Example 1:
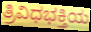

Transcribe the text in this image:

ತ್ರಿವಿಧಭಕ್ತಿಯ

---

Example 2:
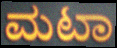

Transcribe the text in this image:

ಮಟಾ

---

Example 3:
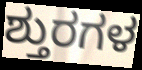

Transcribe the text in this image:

ಶ್ತುರಗಳ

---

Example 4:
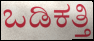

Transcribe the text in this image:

ಒಡಿಕತ್ತಿ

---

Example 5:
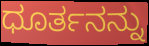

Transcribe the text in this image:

ಧೂರ್ತನನ್ನು